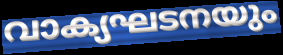
വാക്യഘടനയും